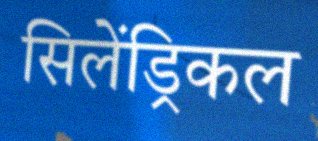
सिलेंड्रिकल